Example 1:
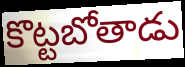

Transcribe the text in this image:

కొట్టబోతాడు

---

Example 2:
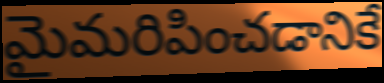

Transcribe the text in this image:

మైమరిపించడానికే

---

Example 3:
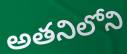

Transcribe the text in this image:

అతనిలోని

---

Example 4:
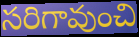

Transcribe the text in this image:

సరిగావుంచి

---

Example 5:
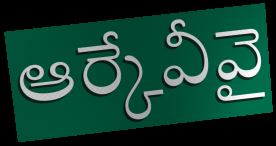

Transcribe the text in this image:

ఆర్కేవీవై